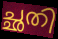
ച്ഛതി